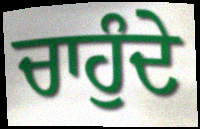
ਚਾਹੁੰਦੇ